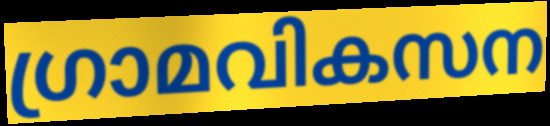
ഗ്രാമവികസന